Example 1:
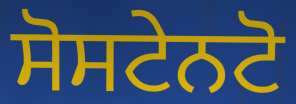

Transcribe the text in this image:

ਸੋਸਟੇਨਟੋ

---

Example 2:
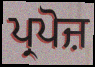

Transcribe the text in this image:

ਪ੍ਰਪੋਜ਼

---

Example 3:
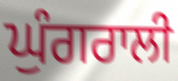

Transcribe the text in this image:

ਘੁੰਗਰਾਲੀ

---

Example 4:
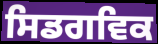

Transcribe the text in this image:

ਸਿਡਗਵਿਕ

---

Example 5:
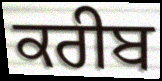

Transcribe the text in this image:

ਕਰੀਬ